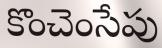
కొంచెంసేపు